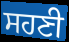
ਸਹਣੀ